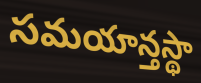
సమయాన్తస్థా